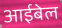
आईबेल